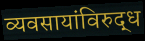
व्यवसायांविरुद्ध